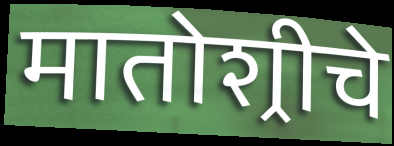
मातोश्रीचे